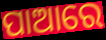
ପାଆରେ